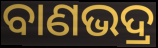
ବାଣଭଦ୍ର